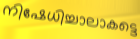
നിഷേധിച്ചാലാകട്ടെ